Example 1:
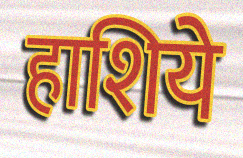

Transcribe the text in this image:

हाशिये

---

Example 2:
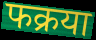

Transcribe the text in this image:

फक्रया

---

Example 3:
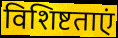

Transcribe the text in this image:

विशिष्टताएं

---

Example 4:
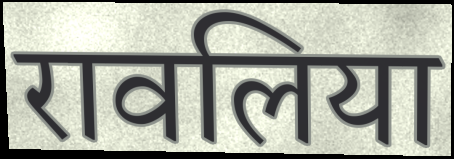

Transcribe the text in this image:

रावलिया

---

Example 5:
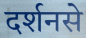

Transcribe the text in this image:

दर्शनसे